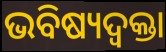
ଭବିଷ୍ୟଦ୍ବକ୍ତା